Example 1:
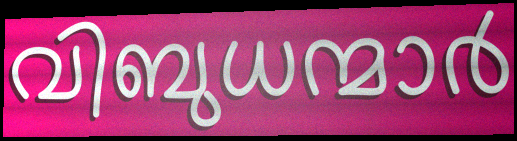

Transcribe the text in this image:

വിബുധന്മാർ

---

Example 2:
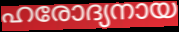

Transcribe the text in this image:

ഹരോദ്യനായ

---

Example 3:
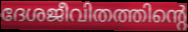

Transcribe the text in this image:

ദേശജീവിതത്തിന്റെ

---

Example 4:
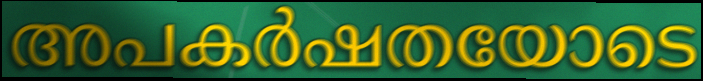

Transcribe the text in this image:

അപകർഷതയോടെ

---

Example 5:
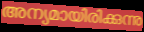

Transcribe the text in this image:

അന്യമായിരിക്കുന്നു